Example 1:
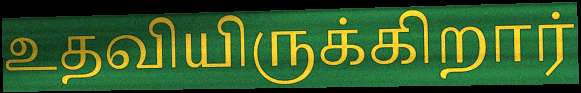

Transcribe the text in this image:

உதவியிருக்கிறார்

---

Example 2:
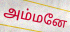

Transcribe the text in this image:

அம்மனே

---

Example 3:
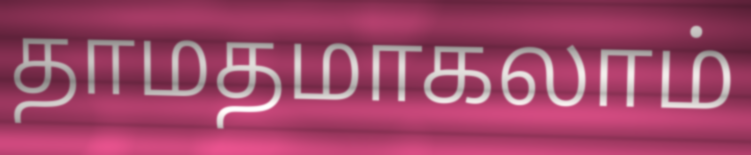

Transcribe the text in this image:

தாமதமாகலாம்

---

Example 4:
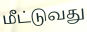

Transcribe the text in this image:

மீட்டுவது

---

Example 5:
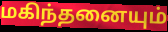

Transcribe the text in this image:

மகிந்தனையும்